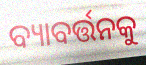
ବ୍ୟାବର୍ତ୍ତନକୁ